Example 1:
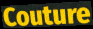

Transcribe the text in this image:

Couture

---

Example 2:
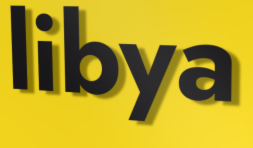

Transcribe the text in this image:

libya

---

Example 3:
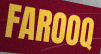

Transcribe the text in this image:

FAROOQ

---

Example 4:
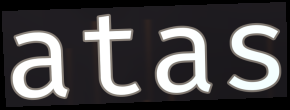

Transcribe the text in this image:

atas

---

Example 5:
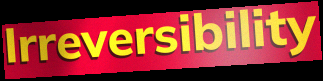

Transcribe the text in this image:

Irreversibility